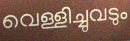
വെള്ളിച്ചുവടും